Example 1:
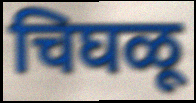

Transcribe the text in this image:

चिघळू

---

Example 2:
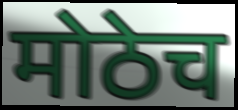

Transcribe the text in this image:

मोठेच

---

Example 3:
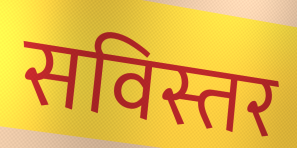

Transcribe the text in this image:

सविस्तर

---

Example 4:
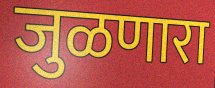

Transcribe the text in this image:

जुळणारा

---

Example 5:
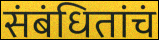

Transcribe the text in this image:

संबंधितांचं